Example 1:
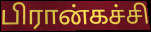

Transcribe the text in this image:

பிரான்கச்சி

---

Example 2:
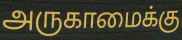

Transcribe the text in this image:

அருகாமைக்கு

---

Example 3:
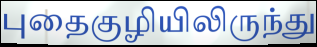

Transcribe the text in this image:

புதைகுழியிலிருந்து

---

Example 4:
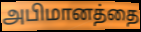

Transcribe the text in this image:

அபிமானத்தை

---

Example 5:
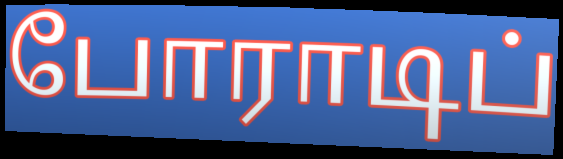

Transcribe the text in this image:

போராடிப்